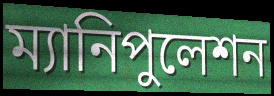
ম্যানিপুলেশন